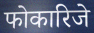
फोकारिजे